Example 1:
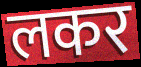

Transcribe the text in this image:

लकर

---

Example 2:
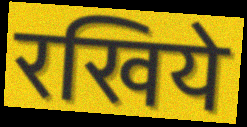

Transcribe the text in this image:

रखिये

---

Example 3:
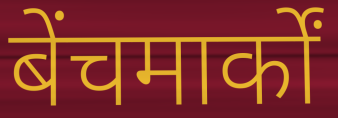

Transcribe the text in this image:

बेंचमार्कों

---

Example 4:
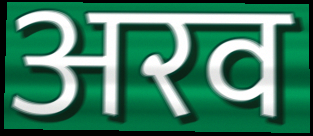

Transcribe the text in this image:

अरव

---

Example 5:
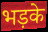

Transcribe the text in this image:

भड़के